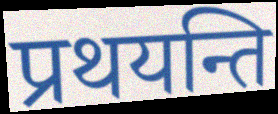
प्रथयन्ति